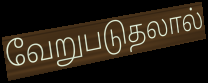
வேறுபடுதலால்